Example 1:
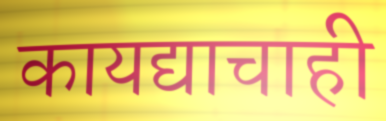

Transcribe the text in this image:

कायद्याचाही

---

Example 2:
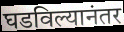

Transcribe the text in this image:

घडविल्यानंतर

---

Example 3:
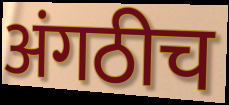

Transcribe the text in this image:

अंगठीच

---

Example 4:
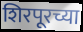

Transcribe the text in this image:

शिरपूरच्या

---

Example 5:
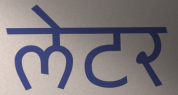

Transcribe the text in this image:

लेटर